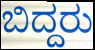
ಬಿದ್ದರು